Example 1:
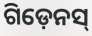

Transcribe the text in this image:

ଗିଡ଼େନସ୍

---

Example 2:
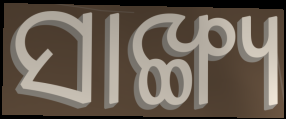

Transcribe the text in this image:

ସାଙ୍ଖ୍ୟ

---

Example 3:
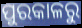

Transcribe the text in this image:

ପୁରକାଳରୁ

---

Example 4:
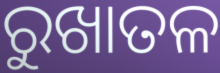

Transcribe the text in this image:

ରୁଖାତଳ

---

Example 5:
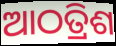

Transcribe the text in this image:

ଆଠତ୍ରିଶ